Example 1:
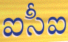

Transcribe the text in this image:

ఐసీఐ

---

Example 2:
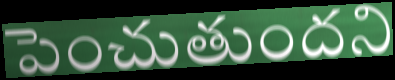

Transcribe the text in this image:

పెంచుతుందని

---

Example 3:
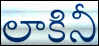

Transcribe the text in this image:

లాకినీ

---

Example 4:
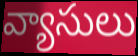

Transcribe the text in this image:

వ్యాసులు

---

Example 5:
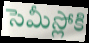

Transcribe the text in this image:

సెమీస్లోకి